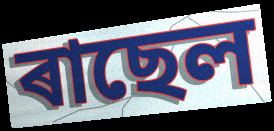
ৰাছেল